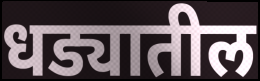
धड्यातील